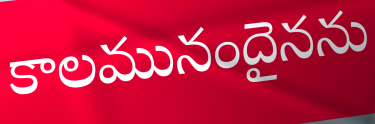
కాలమునందైనను